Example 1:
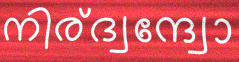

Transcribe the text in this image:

നിര്ദ്വന്ദ്വോ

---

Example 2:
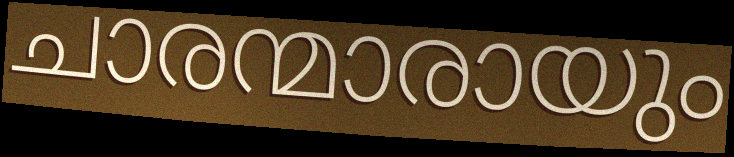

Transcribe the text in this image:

ചാരന്മാരായും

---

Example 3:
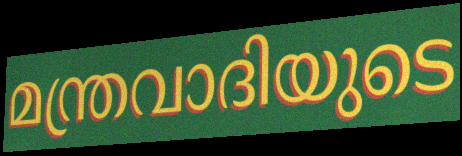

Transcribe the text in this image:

മന്ത്രവാദിയുടെ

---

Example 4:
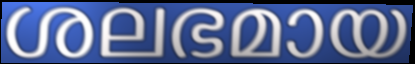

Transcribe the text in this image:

ശലഭമായ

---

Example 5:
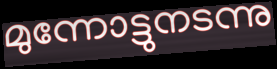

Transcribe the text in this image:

മുന്നോട്ടുനടന്നു